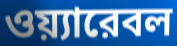
ওয়্যারেবল